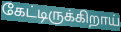
கேட்டிருக்கிறாய்